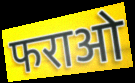
फराओ